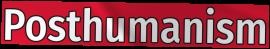
Posthumanism